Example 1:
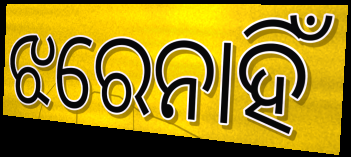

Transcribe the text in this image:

ଝରେନାହିଁ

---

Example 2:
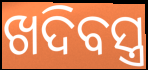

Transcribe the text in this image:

ଖଦିବସ୍ତ୍ର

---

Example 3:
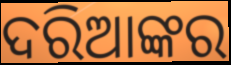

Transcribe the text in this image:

ଦରିଆଙ୍କର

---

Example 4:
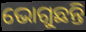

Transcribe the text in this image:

ଭୋଗୁଛନ୍ତି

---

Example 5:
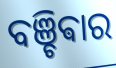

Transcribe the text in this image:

ବଞ୍ଚିଵାର